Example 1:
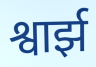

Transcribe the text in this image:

श्वार्झ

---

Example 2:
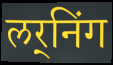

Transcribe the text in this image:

लर्निंग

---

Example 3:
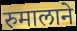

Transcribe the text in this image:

रुमालाने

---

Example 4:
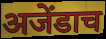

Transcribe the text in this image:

अजेंडाच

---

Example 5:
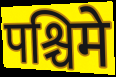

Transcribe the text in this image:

पश्चिमे